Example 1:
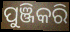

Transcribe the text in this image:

ପୁଞ୍ଜିକରି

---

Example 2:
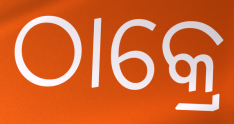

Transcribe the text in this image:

ଠାକ୍ରେ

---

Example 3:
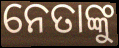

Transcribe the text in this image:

ନେତାଙ୍କୁ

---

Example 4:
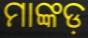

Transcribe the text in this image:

ମାଙ୍କଡ଼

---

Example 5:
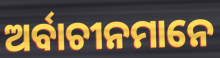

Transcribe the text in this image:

ଅର୍ବାଚୀନମାନେ